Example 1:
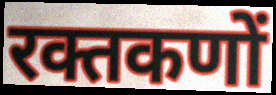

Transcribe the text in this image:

रक्तकणों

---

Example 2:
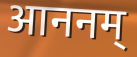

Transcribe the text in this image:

आननम्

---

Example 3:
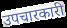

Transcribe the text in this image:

उपचारकारी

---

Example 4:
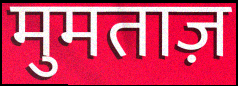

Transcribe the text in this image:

मुमताज़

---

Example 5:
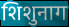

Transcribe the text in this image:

शिशुनाग